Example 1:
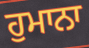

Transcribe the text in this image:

ਹੁਮਾਨਾ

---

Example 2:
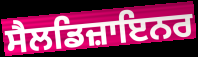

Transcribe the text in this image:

ਸੈਲਡਿਜ਼ਾਇਨਰ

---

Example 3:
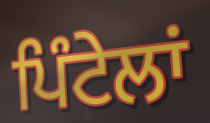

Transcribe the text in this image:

ਪਿੰਟੇਲਾਂ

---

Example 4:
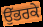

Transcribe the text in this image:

ਉੱਭਰਕੇ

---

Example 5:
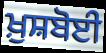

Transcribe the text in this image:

ਖ਼ੁਸ਼ਬੋਈ